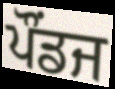
ਪੌਂਡਜ